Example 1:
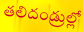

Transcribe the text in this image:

తలిదండ్రుల్లో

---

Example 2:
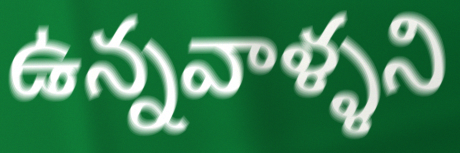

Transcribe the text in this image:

ఉన్నవాళ్ళని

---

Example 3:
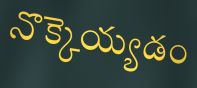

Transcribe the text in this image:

నొక్కెయ్యడం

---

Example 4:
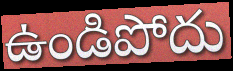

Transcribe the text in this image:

ఉండిపోదు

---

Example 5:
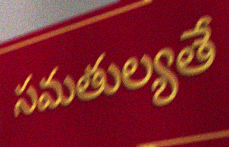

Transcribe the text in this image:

సమతుల్యతే